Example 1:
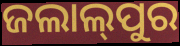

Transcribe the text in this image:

ଜଲାଲ୍‍ପୁର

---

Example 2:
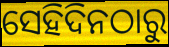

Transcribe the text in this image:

ସେହିଦିନଠାରୁ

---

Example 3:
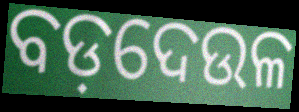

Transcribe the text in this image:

ବଡ଼ଦେଉଳ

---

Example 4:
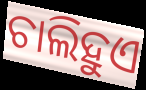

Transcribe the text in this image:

ଚାଲିହୁଏ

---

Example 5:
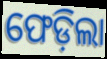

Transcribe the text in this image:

ଫେଡ଼ିଲା